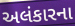
અલંકારના